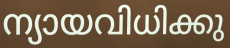
ന്യായവിധിക്കു